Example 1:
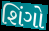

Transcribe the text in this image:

શિંગો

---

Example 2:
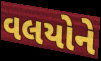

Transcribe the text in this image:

વલયોને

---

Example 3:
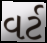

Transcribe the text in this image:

વર્ટ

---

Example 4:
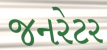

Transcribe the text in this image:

જનરેટર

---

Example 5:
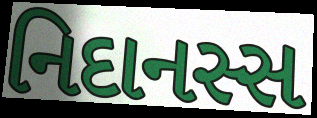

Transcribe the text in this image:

નિદાનસ્સ